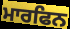
ਮਾਰਫਿਨ